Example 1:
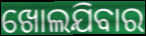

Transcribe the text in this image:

ଖୋଲଯିବାର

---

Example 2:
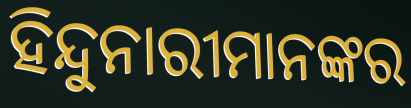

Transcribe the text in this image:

ହିନ୍ଦୁନାରୀମାନଙ୍କର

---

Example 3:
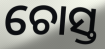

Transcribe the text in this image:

ଚୋସ୍ତ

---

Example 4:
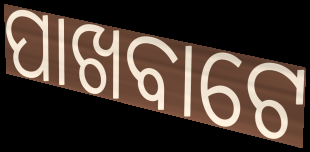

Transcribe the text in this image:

ପାଖବାଟେ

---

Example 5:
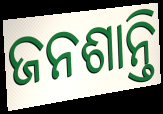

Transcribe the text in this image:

ଜନଶାନ୍ତି